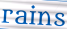
rains